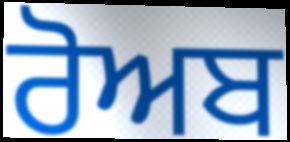
ਰੋਅਬ